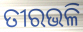
ତୀରଭଳି